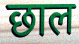
छाल